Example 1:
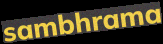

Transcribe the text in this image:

sambhrama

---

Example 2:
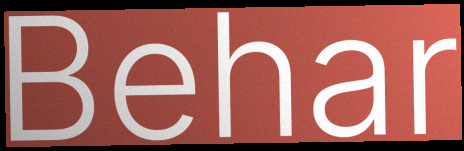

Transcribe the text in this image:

Behar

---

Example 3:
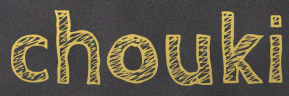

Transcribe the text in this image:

chouki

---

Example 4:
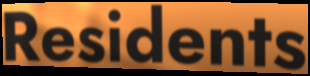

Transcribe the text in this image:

Residents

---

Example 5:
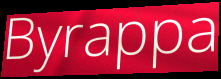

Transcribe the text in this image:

Byrappa